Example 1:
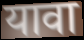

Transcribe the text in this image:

यावा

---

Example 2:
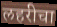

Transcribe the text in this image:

लहरीचा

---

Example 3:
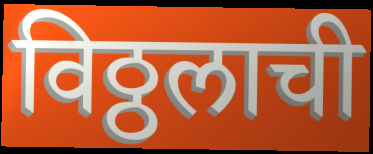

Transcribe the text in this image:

विठ्ठलाची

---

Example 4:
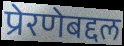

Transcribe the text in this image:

प्रेरणेबद्दल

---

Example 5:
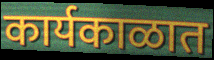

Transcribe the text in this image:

कार्यकाळात